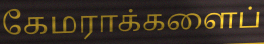
கேமராக்களைப்